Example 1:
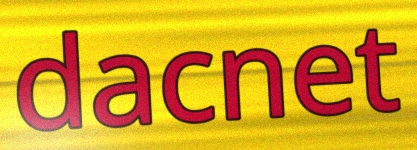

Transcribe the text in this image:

dacnet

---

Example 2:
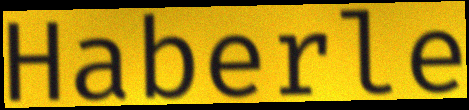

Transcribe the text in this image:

Haberle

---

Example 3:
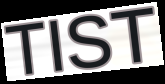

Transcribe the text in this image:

TIST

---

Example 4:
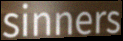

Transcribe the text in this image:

sinners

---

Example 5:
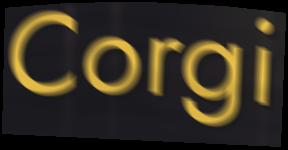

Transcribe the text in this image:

Corgi